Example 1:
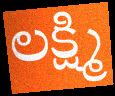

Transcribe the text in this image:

లక్ష్మి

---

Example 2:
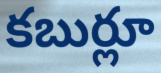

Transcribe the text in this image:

కబుర్లూ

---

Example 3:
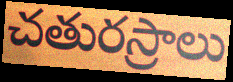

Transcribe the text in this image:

చతురస్రాలు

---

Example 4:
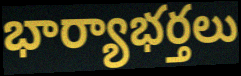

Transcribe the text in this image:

భార్యాభర్తలు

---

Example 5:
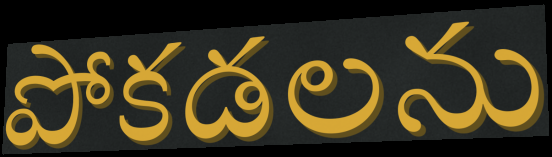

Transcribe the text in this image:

పోకడలను